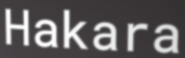
Hakara